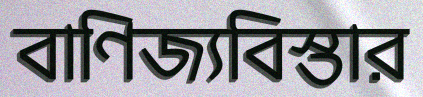
বাণিজ্যবিস্তার